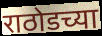
राठोडच्या